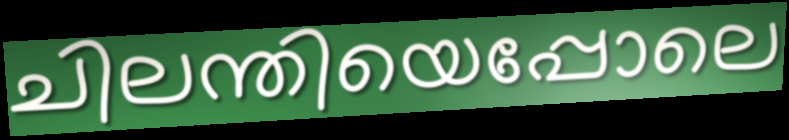
ചിലന്തിയെപ്പോലെ